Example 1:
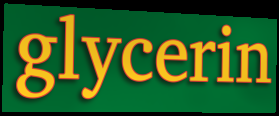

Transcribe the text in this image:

glycerin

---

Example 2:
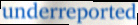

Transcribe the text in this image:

underreported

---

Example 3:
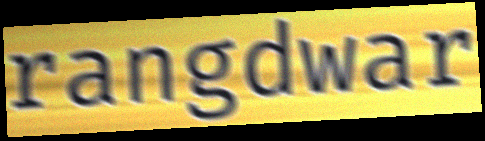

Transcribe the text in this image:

rangdwar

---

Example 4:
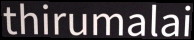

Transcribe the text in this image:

thirumalai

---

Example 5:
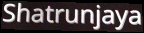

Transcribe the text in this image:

Shatrunjaya